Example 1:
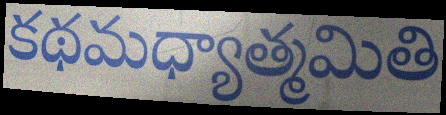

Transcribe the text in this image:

కథమధ్యాత్మమితి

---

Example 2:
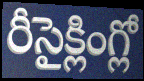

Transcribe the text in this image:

రీసైక్లింగ్లో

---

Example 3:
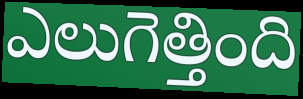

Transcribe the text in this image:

ఎలుగెత్తింది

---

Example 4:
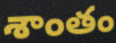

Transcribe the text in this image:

శాంతం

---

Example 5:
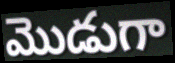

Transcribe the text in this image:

మొడుగా